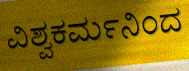
ವಿಶ್ವಕರ್ಮನಿಂದ